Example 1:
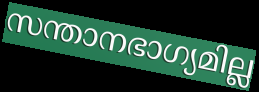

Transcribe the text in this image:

സന്താനഭാഗ്യമില്ല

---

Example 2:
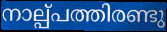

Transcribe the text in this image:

നാല്പ്പത്തിരണ്ടു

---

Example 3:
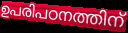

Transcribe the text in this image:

ഉപരിപഠനത്തിന്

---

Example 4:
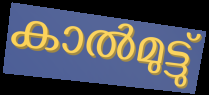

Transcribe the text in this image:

കാൽമുട്ടു്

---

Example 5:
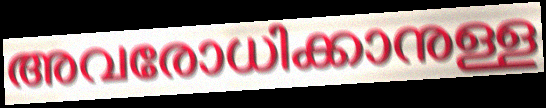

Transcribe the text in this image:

അവരോധിക്കാനുള്ള